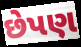
છેપણ